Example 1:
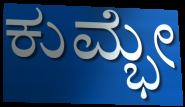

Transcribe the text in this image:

ಕುಮ್ಭೇ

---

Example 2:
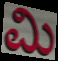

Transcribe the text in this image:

ಮಿ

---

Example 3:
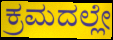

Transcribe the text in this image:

ಕ್ರಮದಲ್ಲೇ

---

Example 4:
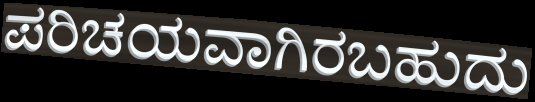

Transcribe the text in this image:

ಪರಿಚಯವಾಗಿರಬಹುದು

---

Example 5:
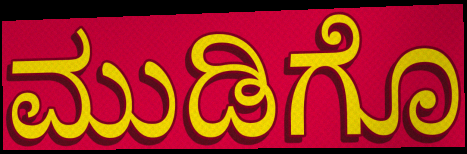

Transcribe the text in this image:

ಮುಡಿಗೊ